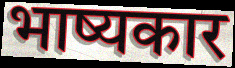
भाष्यकार